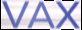
VAX